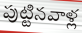
పుట్టినవాళ్ల